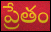
ప్రేతం